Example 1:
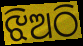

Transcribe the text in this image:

ଝିଅଠି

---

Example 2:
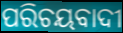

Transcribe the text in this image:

ପରିଚୟବାଦୀ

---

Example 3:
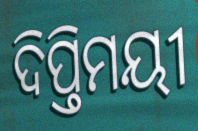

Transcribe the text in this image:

ଦିପ୍ତିମୟୀ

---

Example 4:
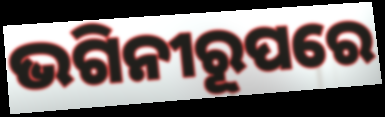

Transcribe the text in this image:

ଭଗିନୀରୂପରେ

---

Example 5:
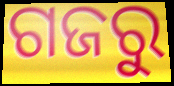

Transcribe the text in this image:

ଗଜରୁ